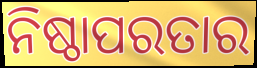
ନିଷ୍ଠାପରତାର